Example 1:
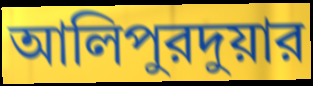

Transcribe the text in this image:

আলিপুরদুয়ার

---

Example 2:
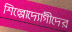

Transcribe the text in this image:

শিল্পোদ্যোগীদের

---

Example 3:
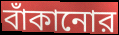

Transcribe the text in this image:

বাঁকানোর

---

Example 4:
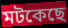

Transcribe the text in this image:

মটকেছে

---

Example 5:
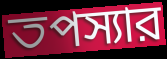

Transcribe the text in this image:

তপস্যার